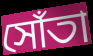
সোঁতা